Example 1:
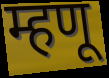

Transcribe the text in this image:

म्हणू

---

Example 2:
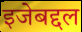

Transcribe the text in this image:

इजेबद्दल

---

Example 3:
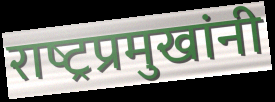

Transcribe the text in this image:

राष्ट्रप्रमुखांनी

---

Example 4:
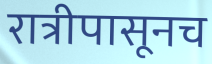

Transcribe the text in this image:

रात्रीपासूनच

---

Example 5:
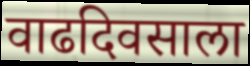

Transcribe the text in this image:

वाढदिवसाला